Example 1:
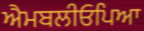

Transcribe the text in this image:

ਐਮਬਲੀਓਪਿਆ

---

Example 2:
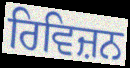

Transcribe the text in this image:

ਰਿਵਿਜ਼ਨ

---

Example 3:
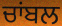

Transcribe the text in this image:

ਚਾਂਬਲ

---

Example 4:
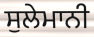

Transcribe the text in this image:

ਸੁਲੇਮਾਨੀ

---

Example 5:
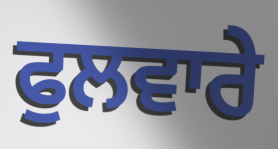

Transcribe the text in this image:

ਫੁਲਵਾਰੇ